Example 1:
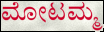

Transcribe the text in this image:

ಮೋಟಮ್ಮ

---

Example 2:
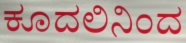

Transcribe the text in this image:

ಕೂದಲಿನಿಂದ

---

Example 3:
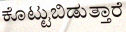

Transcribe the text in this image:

ಕೊಟ್ಟುಬಿಡುತ್ತಾರೆ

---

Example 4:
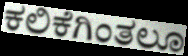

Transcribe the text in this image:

ಕಲಿಕೆಗಿಂತಲೂ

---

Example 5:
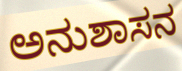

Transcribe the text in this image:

ಅನುಶಾಸನ